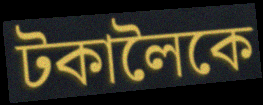
টকালৈকে